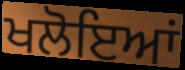
ਖਲੋਇਆਂ